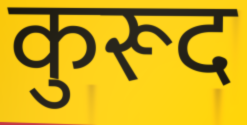
कुरूद